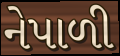
નેપાળી